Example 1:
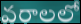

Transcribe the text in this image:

వరాలలో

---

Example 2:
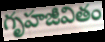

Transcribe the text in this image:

గృహజీవితం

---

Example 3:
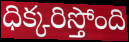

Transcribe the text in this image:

ధిక్కరిస్తోంది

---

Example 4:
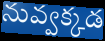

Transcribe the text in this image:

నువ్వక్కడ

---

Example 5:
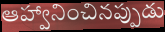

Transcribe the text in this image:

ఆహ్వానించినప్పుడు